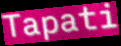
Tapati